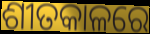
ଶୀତକାଳରେ